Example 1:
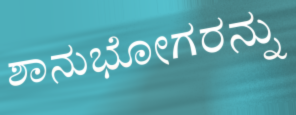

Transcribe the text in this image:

ಶಾನುಭೋಗರನ್ನು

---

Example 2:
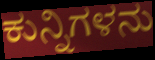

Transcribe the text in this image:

ಕುನ್ನಿಗಳನು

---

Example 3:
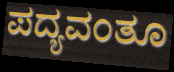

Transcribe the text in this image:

ಪದ್ಯವಂತೂ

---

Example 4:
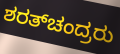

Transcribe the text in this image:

ಶರತ್‌ಚಂದ್ರರು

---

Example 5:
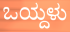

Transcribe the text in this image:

ಒಯ್ದಳು